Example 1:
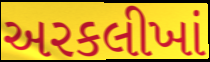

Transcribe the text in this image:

અરકલીખાં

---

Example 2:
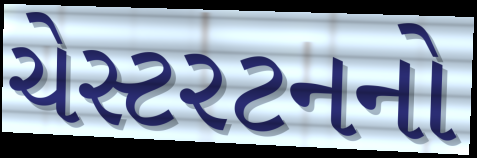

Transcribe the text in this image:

ચેસ્ટરટનનો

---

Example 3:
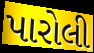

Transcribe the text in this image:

પારોલી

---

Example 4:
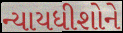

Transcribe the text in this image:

ન્યાયધીશોને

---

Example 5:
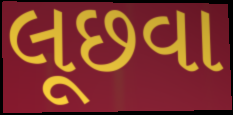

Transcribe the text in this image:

લૂછવા